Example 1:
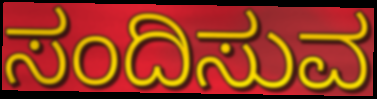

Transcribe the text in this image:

ಸಂದಿಸುವ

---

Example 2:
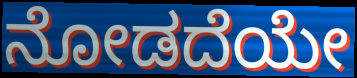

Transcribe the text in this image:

ನೋಡದೆಯೇ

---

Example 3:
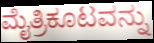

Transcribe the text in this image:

ಮೈತ್ರಿಕೂಟವನ್ನು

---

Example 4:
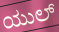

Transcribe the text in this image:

ಯುಲ್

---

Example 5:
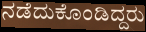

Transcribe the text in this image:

ನಡೆದುಕೊಂಡಿದ್ದರು